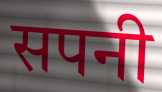
सपनी